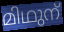
മിഥുന്